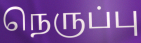
நெருப்பு